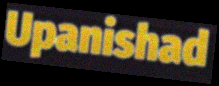
Upanishad